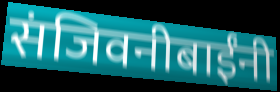
संजिवनीबाईंनी